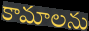
కామాలను